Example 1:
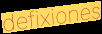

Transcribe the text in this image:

defixiones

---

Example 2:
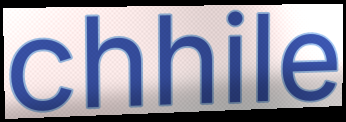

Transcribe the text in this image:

chhile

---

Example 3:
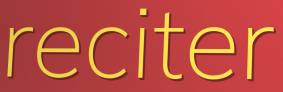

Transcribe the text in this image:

reciter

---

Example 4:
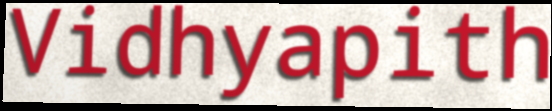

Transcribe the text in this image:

Vidhyapith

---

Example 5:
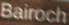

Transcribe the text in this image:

Bairoch